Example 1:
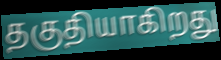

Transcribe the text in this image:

தகுதியாகிறது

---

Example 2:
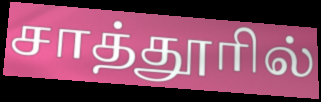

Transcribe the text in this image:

சாத்தூரில்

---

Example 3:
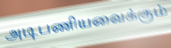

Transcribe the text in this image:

அடிபணியவைக்கும்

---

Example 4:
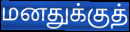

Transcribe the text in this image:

மனதுக்குத்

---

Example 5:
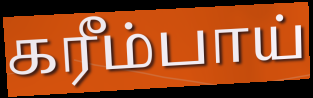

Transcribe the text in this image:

கரீம்பாய்